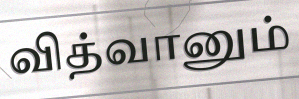
வித்வானும்